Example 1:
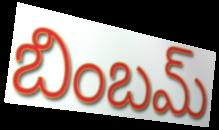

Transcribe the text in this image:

బింబమ్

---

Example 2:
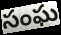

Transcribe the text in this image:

సంఘ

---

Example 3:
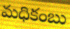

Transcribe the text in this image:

మధికంబు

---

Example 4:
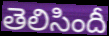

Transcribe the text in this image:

తెలిసిందీ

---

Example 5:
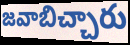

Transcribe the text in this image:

జవాబిచ్చారు